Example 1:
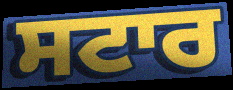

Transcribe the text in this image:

ਸਟਾਰ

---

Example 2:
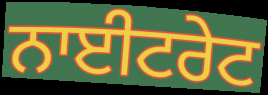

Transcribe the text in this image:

ਨਾਈਟਰੇਟ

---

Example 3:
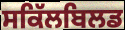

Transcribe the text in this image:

ਸਕਿੱਲਬਿਲਡ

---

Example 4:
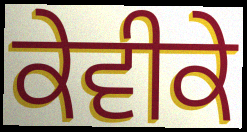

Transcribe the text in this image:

ਕੇਵੀਕੇ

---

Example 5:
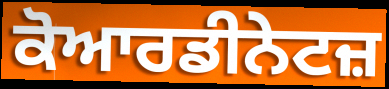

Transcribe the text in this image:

ਕੋਆਰਡੀਨੇਟਜ਼